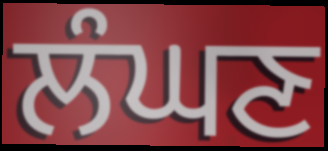
ਲੰਘਣ